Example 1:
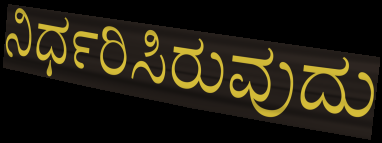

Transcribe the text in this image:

ನಿರ್ಧರಿಸಿರುವುದು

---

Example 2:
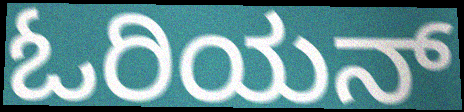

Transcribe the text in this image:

ಓರಿಯನ್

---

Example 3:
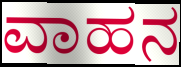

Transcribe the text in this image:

ವಾಹನ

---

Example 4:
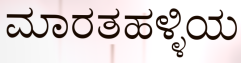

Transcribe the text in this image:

ಮಾರತಹಳ್ಳಿಯ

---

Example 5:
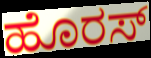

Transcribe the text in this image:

ಹೊರಸ್